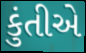
કુંતીએ